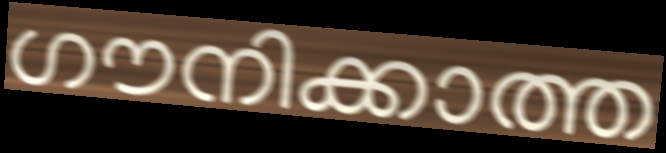
ഗൗനിക്കാത്ത